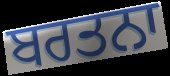
ਬਰਤਨਾ